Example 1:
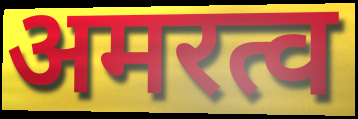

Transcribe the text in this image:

अमरत्व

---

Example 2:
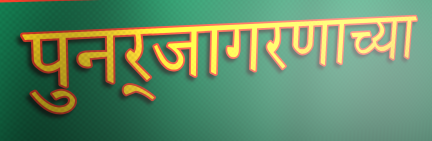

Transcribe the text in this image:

पुनर्जागरणाच्या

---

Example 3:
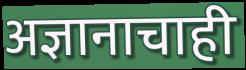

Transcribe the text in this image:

अज्ञानाचाही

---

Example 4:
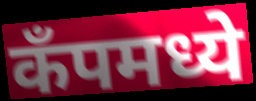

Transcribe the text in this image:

कॅंपमध्ये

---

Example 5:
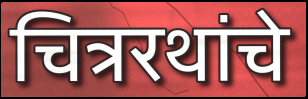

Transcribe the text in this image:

चित्ररथांचे